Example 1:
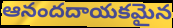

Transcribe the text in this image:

ఆనందదాయకమైన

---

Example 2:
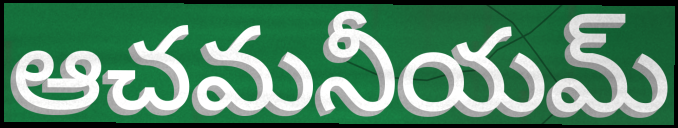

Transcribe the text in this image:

ఆచమనీయమ్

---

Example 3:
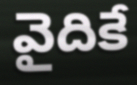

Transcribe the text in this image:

వైదికే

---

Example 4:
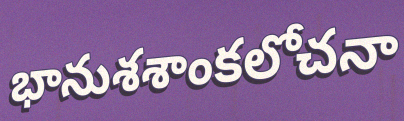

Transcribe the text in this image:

భానుశశాంకలోచనా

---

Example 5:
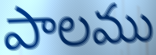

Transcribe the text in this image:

పాలము